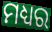
ମଧ୍ଯର